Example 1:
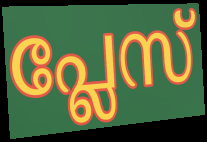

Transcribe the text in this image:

പ്ലേസ്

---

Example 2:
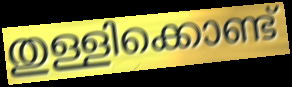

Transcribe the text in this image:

തുള്ളിക്കൊണ്ട്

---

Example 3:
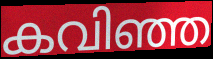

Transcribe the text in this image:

കവിഞ്ഞ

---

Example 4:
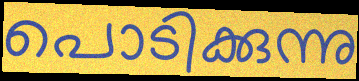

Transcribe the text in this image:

പൊടിക്കുന്നു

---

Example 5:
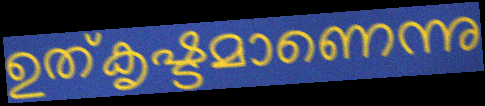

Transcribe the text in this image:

ഉത്കൃഷ്ടമാണെന്നു